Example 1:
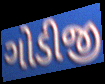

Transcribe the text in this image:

ગોડીજી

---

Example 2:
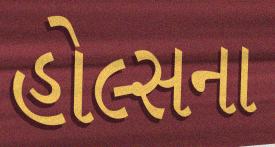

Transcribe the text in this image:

હોલ્સના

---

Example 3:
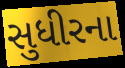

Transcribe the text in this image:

સુધીરના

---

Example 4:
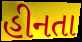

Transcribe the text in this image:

હીનતા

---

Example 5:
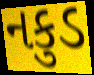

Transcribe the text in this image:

નકુડ